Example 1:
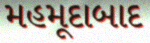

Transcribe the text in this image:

મહમૂદાબાદ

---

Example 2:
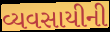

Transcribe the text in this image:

વ્યવસાયીની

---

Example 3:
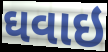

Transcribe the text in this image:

ઘવાઇ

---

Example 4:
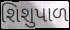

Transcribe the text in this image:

શિશુપાળ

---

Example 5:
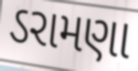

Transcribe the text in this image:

ડરામણા